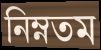
নিম্নতম